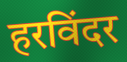
हरविंदर